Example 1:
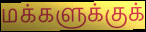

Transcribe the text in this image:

மக்களுக்குக்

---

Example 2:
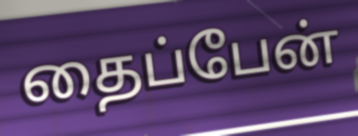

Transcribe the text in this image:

தைப்பேன்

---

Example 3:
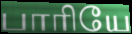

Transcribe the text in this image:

பாரியே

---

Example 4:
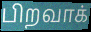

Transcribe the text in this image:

பிறவாக்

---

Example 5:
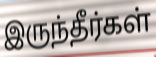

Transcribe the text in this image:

இருந்தீர்கள்